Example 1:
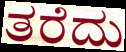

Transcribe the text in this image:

ತರೆದು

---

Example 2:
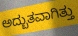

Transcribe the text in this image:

ಅದ್ಬುತವಾಗಿತ್ತು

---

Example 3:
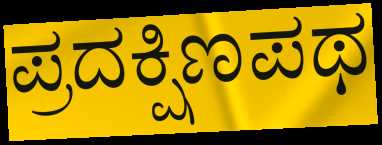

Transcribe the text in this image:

ಪ್ರದಕ್ಷಿಣಪಥ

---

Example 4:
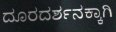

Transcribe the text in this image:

ದೂರದರ್ಶನಕ್ಕಾಗಿ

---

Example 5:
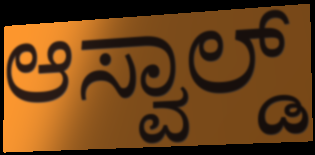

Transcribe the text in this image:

ಆಸ್ವಾಲ್ಡ್